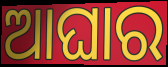
ଆଘାର